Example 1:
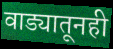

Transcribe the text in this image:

वाड्यातूनही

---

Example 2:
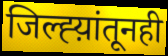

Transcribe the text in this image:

जिल्ह्य़ांतूनही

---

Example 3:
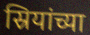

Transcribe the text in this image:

स्रियांच्या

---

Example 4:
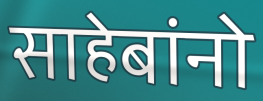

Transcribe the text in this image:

साहेबांनो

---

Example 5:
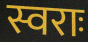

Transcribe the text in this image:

स्वराः